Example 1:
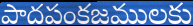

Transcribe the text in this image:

పాదపంకజములకు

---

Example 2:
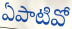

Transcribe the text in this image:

ఏపాటివో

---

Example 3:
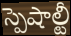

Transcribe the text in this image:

స్పెషాల్టీ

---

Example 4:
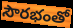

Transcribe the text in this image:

సౌరభంతో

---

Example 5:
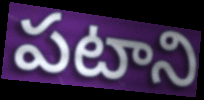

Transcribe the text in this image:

పటాని